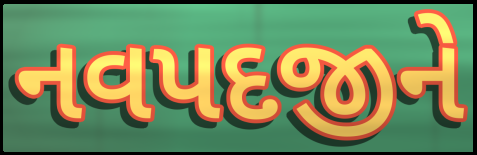
નવપદજીને